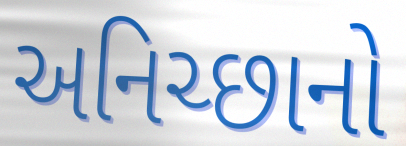
અનિચ્છાનો